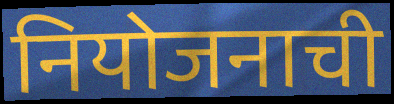
नियोजनाची